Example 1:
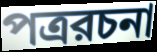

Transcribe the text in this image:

পত্ররচনা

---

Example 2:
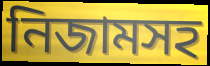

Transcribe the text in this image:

নিজামসহ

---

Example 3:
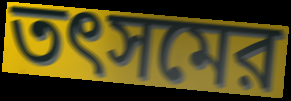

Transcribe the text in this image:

তৎসমের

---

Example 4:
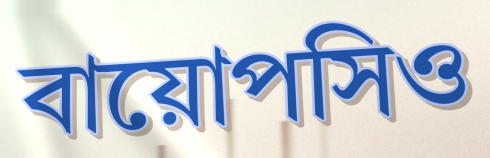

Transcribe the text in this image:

বায়োপসিও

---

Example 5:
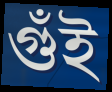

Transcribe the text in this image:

গুঁই